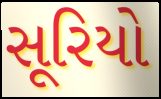
સૂરિયો